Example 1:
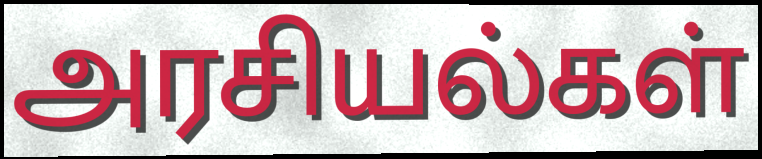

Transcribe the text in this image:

அரசியல்கள்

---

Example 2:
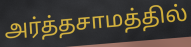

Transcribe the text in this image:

அர்த்தசாமத்தில்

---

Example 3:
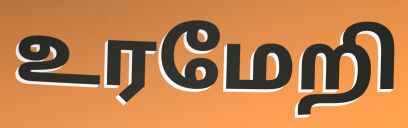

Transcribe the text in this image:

உரமேறி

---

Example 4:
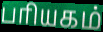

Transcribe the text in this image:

பரியகம்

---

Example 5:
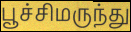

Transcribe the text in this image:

பூச்சிமருந்து